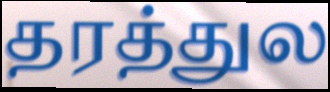
தரத்துல